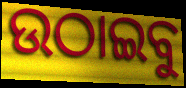
ଉଠାଇବୁ